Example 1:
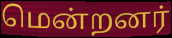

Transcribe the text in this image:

மென்றனர்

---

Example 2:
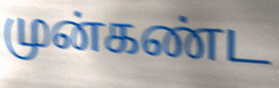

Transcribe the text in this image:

முன்கண்ட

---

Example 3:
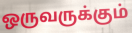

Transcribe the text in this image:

ஒருவருக்கும்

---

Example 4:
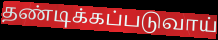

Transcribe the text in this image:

தண்டிக்கப்படுவாய்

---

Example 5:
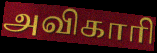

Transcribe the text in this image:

அவிகாரி